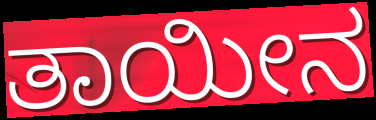
ತಾಯೀನ